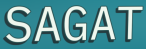
SAGAT